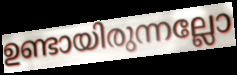
ഉണ്ടായിരുന്നല്ലോ